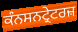
ਕੰਨਸਨਟ੍ਰੇਟਰਜ਼